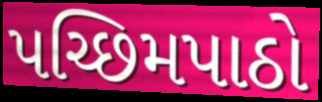
પચ્છિમપાઠો